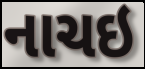
નાચઇ